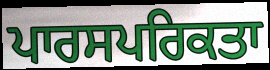
ਪਾਰਸਪਰਿਕਤਾ